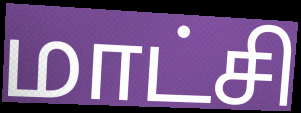
மாட்சி